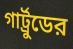
গার্ট্রুডের